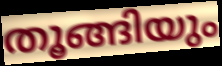
തൂങ്ങിയും